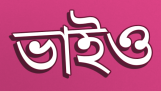
ভাইও